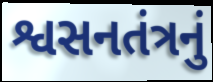
શ્વસનતંત્રનું